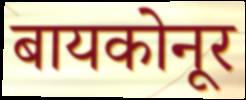
बायकोनूर